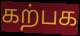
கற்பக